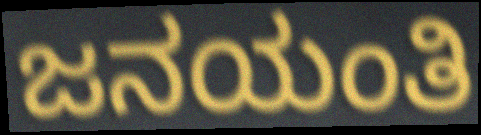
ಜನಯಂತಿ